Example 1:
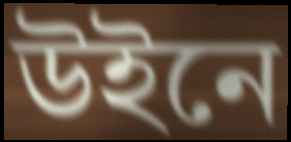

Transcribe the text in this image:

উইনে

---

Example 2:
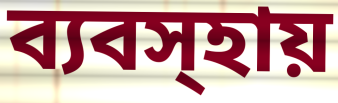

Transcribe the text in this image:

ব্যবস্হায়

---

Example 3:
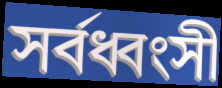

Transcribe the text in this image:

সর্বধ্বংসী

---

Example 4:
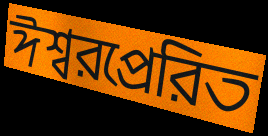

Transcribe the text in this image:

ঈশ্বরপ্রেরিত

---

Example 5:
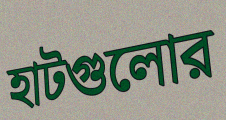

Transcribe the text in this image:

হাটগুলোর